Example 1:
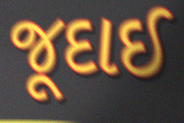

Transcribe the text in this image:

જૂદાઈ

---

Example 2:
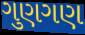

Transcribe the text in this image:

ગુણગણ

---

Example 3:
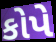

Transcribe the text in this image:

કોપે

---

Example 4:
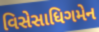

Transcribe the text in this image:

વિસેસાધિગમેન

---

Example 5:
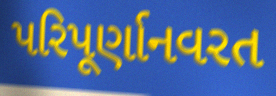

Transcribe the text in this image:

પરિપૂર્ણાનવરત